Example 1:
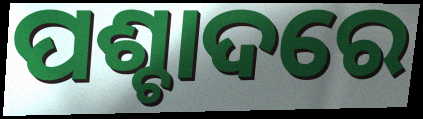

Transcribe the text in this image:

ପଶ୍ଚାଦରେ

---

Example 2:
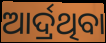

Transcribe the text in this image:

ଆର୍ଦ୍ରଥିବା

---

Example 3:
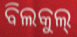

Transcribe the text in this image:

ବିଲକୁଲ୍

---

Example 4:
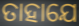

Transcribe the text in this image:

ତାହାଯେ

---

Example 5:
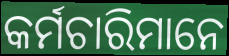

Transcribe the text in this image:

କର୍ମଚାରିମାନେ